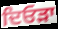
ਦਿਓੜਾ